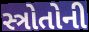
સ્ત્રોતોની